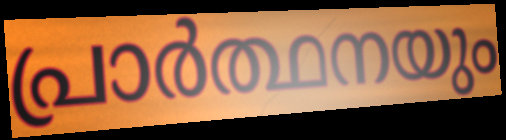
പ്രാർത്ഥനയും